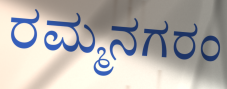
ರಮ್ಮನಗರಂ